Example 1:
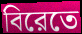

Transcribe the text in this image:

বিরেতে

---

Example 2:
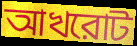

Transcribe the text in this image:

আখরোট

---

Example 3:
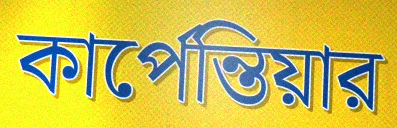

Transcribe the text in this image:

কার্পেন্তিয়ার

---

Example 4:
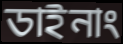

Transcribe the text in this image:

ডাইনাং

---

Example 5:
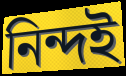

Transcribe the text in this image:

নিন্দই